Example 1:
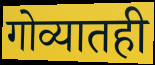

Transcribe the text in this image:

गोव्यातही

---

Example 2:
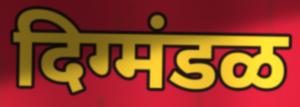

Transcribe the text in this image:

दिग्मंडळ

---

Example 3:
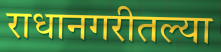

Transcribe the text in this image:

राधानगरीतल्या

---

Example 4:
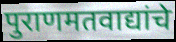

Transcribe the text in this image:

पुराणमतवाद्यांचे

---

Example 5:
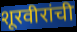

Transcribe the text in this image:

शूरवीरांची